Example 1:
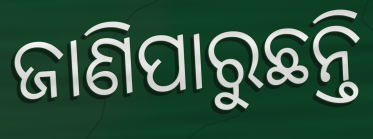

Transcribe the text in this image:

ଜାଣିପାରୁଛନ୍ତି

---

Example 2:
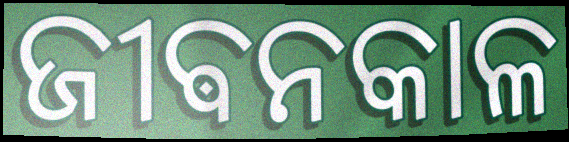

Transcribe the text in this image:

ଜୀଵନକାଳ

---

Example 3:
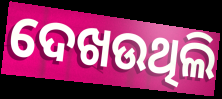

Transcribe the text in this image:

ଦେଖଉଥିଲି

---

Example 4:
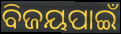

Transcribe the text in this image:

ବିଜୟପାଇଁ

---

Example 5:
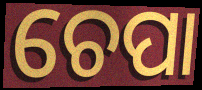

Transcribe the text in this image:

ଚେପା